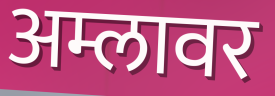
अम्लावर